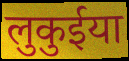
लुकुईया